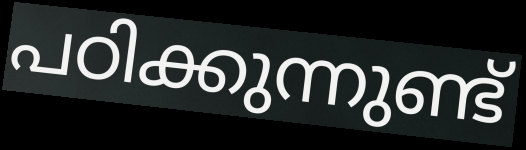
പഠിക്കുന്നുണ്ട്